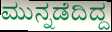
ಮುನ್ನಡೆದಿದ್ದ